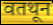
वतथून